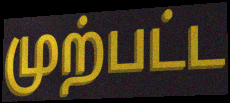
முற்பட்ட